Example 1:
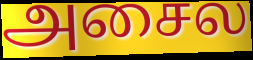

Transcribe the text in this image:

அசைல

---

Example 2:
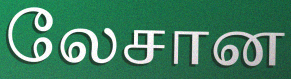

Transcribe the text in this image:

லேசான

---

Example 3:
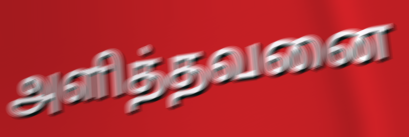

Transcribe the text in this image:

அளித்தவனை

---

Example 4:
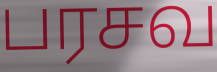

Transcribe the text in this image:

பரசவ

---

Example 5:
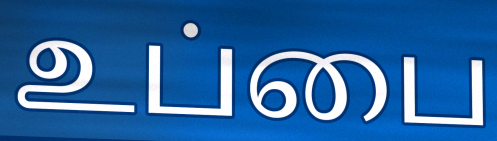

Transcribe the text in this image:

உப்பை